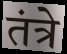
तंत्रे